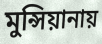
মুন্সিয়ানায়